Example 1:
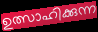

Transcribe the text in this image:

ഉത്സാഹിക്കുന്ന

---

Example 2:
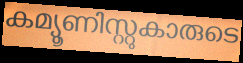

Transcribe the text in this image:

കമ്യൂണിസ്റ്റുകാരുടെ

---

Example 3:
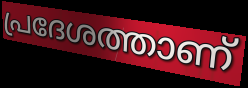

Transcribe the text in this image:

പ്രദേശത്താണ്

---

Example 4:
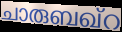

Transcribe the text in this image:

ചാരുബഖ്റ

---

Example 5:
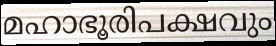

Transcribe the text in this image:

മഹാഭൂരിപക്ഷവും